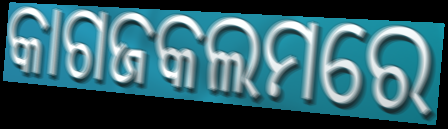
କାଗଜକଲମରେ